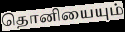
தொனியையும்